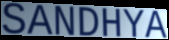
SANDHYA